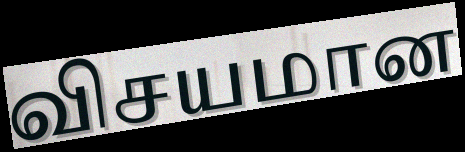
விசயமான